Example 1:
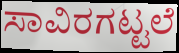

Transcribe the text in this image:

ಸಾವಿರಗಟ್ಟಲೆ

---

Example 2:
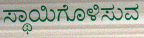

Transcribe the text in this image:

ಸ್ಥಾಯಿಗೊಳಿಸುವ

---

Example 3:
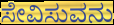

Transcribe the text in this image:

ಸೇವಿಸುವನು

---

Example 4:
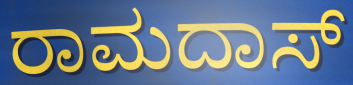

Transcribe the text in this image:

ರಾಮದಾಸ್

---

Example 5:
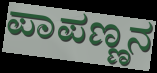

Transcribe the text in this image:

ಪಾಪಣ್ಣನ